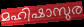
മഹിഷാസുര